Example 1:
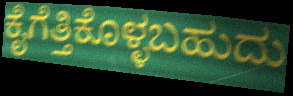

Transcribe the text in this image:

ಕೈಗೆತ್ತಿಕೊಳ್ಳಬಹುದು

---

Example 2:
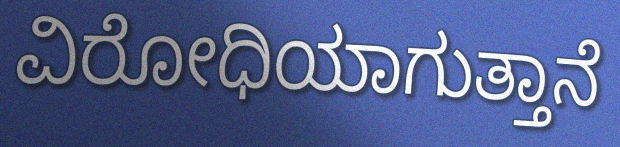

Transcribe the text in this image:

ವಿರೋಧಿಯಾಗುತ್ತಾನೆ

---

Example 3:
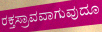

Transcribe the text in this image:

ರಕ್ತಸ್ರಾವವಾಗುವುದೂ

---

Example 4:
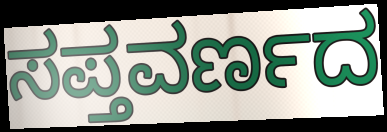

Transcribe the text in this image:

ಸಪ್ತವರ್ಣದ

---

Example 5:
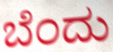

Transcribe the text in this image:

ಬೆಂದು